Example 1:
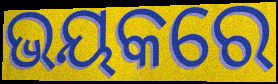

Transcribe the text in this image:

ଭୟକରେ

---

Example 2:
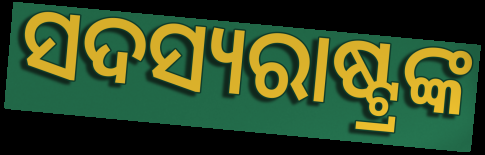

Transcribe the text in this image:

ସଦସ୍ୟରାଷ୍ଟ୍ରଙ୍କ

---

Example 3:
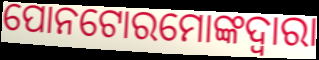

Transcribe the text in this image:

ପୋନଟୋରମୋଙ୍କଦ୍ୱାରା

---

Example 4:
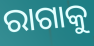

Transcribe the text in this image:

ରାଗାକୁ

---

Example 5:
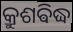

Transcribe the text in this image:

କ୍ରୁଶଵିଦ୍ଧ